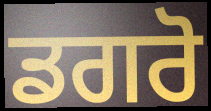
ਡਗਰੋ